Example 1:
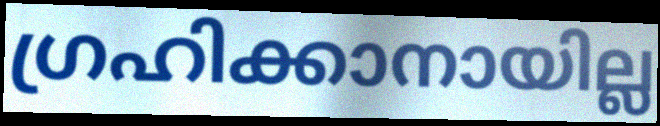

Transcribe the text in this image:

ഗ്രഹിക്കാനായില്ല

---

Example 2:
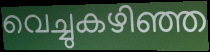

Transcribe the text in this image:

വെച്ചുകഴിഞ്ഞ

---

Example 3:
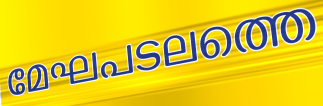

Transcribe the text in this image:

മേഘപടലത്തെ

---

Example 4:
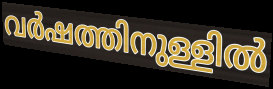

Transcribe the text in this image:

വർഷത്തിനുള്ളിൽ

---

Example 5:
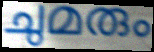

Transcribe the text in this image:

ചുമരും